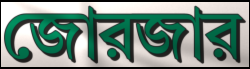
জোরজার